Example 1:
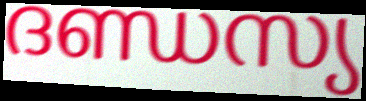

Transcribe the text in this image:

ദണ്ഡസ്യ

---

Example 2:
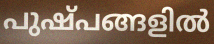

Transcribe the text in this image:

പുഷ്പങ്ങളിൽ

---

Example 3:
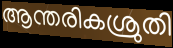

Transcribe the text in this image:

ആന്തരികശ്രുതി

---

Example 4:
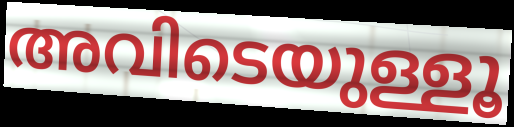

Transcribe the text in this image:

അവിടെയുള്ളൂ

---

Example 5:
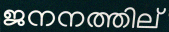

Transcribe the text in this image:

ജനനത്തില്